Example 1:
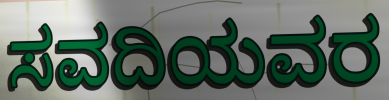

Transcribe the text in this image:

ಸವದಿಯವರ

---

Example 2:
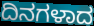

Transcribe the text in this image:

ದಿನಗಳಾದ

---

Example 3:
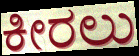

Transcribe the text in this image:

ಕೀರಲು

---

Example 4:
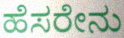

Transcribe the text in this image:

ಹೆಸರೇನು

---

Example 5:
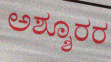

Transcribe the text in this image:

ಅಶ್ಶೂರರ